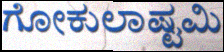
ಗೋಕುಲಾಷ್ಟಮಿ